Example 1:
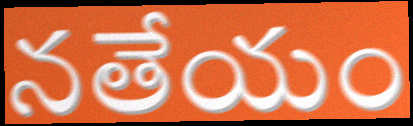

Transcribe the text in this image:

నతేయం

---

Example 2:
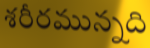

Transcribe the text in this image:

శరీరమున్నది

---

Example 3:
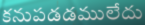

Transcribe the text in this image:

కనుపడడములేదు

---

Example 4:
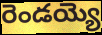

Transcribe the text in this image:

రెండయ్యె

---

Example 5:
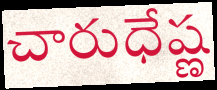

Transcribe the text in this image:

చారుధేష్ణ